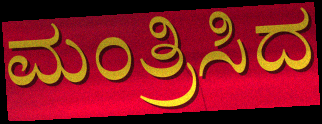
ಮಂತ್ರಿಸಿದ